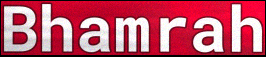
Bhamrah